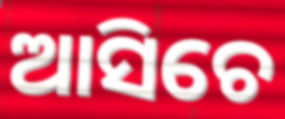
ଆସିଚେ